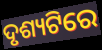
ଦୃଶ୍ୟଟିରେ